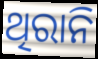
ଥିରାନି